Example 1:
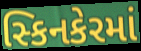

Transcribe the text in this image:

સ્કિનકેરમાં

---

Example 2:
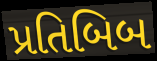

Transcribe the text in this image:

પ્રતિબિબ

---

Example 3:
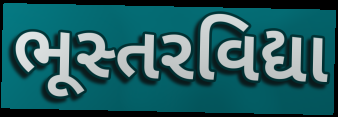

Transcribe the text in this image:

ભૂસ્તરવિદ્યા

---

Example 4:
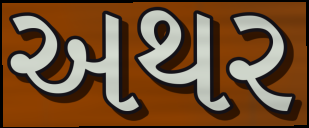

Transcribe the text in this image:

અથર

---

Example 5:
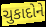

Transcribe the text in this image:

ચુકાદોને